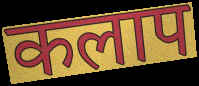
कलाप